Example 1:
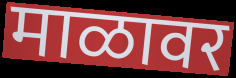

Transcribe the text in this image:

माळावर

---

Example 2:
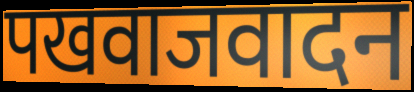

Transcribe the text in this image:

पखवाजवादन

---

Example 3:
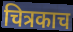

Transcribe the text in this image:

चित्रकाच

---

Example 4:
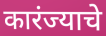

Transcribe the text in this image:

कारंज्याचे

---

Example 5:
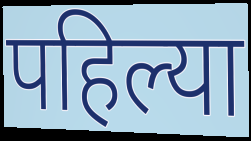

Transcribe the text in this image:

पहिल्या